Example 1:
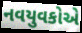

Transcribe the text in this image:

નવયુવકોએ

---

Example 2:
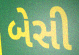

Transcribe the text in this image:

બેસી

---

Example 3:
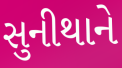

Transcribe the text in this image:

સુનીથાને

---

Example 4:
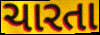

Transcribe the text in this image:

ચારતા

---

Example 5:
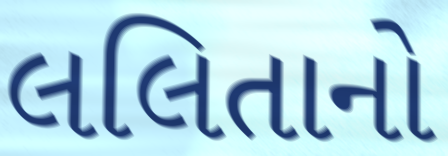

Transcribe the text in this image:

લલિતાનો